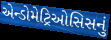
એન્ડોમેટ્રિઓસિસનું